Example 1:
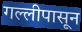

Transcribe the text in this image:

गल्लीपासून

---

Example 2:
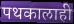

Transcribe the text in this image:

पथकालाही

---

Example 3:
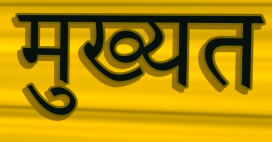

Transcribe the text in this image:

मुख्यत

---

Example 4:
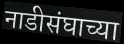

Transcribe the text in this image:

नाडीसंघाच्या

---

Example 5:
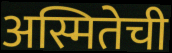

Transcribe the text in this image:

अस्मितेची